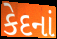
કેદનાં